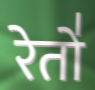
रेतो॑